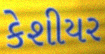
કેશીયર